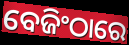
ବେଜିଂଠାରେ